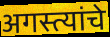
अगस्त्यांचे